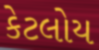
કેટલોય